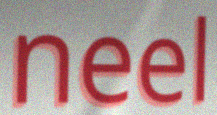
neel